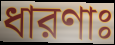
ধারণাঃ